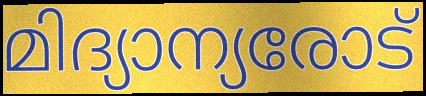
മിദ്യാന്യരോട്